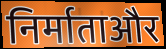
निर्माताऔर